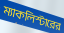
ম্যাকলিস্টারের